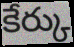
కేర్కు